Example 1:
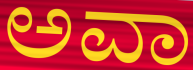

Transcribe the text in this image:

ಅವಾ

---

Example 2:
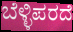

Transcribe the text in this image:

ಬೆಳ್ಳಿಪರದೆ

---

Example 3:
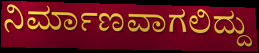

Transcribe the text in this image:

ನಿರ್ಮಾಣವಾಗಲಿದ್ದು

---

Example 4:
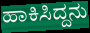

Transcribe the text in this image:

ಹಾಕಿಸಿದ್ದನು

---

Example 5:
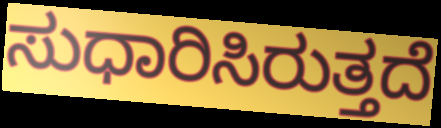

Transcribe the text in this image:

ಸುಧಾರಿಸಿರುತ್ತದೆ